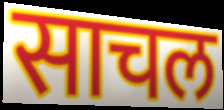
साचल